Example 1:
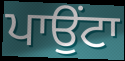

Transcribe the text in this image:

ਪਾਉੰਟਾ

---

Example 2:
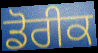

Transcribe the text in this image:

ਡੋਰੀਕ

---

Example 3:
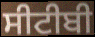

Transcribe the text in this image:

ਸੀਟੀਬੀ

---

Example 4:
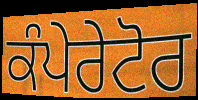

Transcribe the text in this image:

ਕੰਪੇਰੇਟੋਰ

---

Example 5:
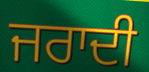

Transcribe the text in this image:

ਜਰਾਦੀ